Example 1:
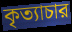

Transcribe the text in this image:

কৃত্যাচার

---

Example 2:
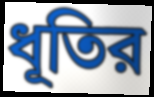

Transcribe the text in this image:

ধূতির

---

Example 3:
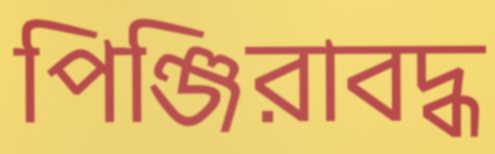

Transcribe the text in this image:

পিঞ্জিরাবদ্ধ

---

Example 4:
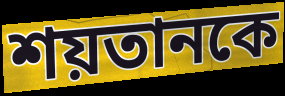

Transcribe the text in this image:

শয়তানকে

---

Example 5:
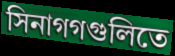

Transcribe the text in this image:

সিনাগগগুলিতে